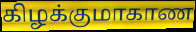
கிழக்குமாகாண